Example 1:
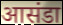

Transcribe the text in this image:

आसंडा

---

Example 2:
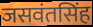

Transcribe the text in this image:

जसवंतसिंह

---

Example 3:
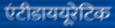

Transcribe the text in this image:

एंटीडाययूरेटिक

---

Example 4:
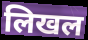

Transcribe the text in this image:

लिखल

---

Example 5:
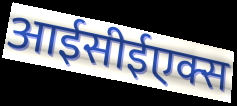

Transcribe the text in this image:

आईसीईएक्स